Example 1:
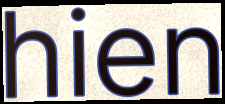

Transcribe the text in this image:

hien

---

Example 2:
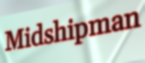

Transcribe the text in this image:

Midshipman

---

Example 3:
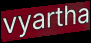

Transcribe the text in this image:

vyartha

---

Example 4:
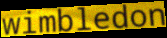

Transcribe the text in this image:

wimbledon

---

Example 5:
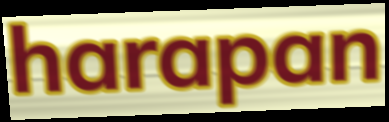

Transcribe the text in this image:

harapan